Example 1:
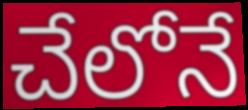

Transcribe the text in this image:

చేలోనే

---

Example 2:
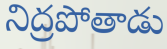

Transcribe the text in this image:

నిద్రపోతాడు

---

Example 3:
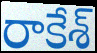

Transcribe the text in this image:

రాకేశ్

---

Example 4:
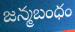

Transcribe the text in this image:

జన్మబంధం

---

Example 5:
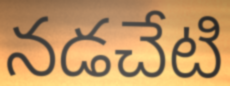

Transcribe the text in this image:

నడచేటి